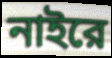
নাইরে